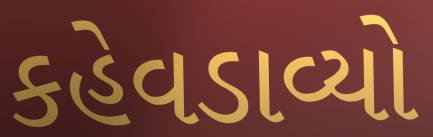
કહેવડાવ્યો